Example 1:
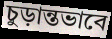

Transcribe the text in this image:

চুড়ান্তভাবে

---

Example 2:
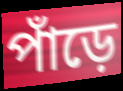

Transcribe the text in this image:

পাঁড়ে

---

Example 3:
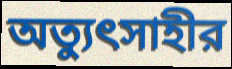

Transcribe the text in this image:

অত্যুৎসাহীর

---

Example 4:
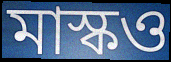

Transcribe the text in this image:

মাস্কও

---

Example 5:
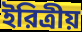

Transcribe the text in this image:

ইরিত্রীয়